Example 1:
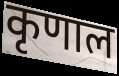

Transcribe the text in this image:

कृणाल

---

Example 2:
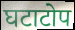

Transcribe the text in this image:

घटाटोप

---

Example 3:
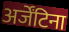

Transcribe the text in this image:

अर्जेंटिना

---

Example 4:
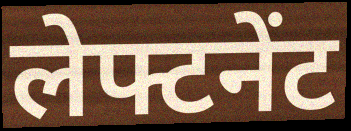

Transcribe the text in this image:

लेफ्टनेंट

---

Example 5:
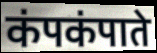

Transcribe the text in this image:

कंपकंपाते